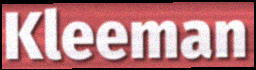
Kleeman